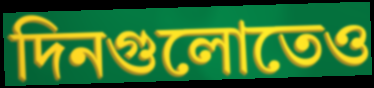
দিনগুলোতেও